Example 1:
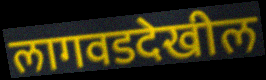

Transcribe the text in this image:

लागवडदेखील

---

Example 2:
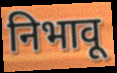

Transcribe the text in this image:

निभावू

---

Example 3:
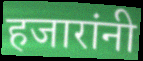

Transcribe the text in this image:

हजारांनी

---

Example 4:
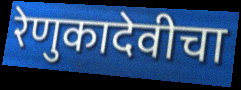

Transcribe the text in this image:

रेणुकादेवीचा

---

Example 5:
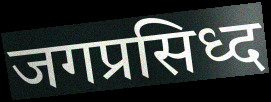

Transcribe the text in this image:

जगप्रसिध्द